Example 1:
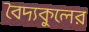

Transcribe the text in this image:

বৈদ্যকুলের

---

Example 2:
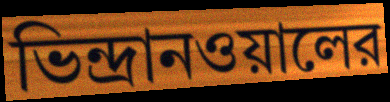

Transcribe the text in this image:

ভিন্দ্রানওয়ালের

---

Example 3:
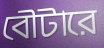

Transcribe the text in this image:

বৌটারে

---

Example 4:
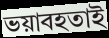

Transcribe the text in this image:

ভয়াবহতাই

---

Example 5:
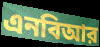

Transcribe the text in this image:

এনবিআর